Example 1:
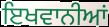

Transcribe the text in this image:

ਇਖਵਾਨੀਆਂ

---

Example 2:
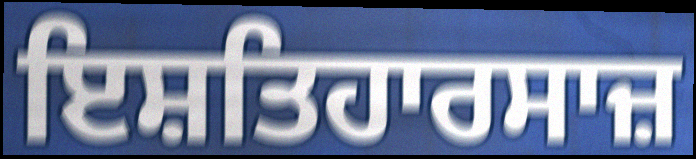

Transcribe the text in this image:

ਇਸ਼ਤਿਹਾਰਸਾਜ਼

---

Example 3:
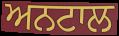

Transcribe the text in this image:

ਅਨਟਾਲ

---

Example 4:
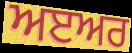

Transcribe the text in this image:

ਅੲਅਰ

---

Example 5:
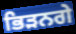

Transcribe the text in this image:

ਭਿੜਨਗੇ